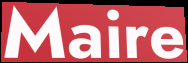
Maire